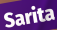
Sarita